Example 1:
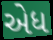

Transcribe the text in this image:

એધ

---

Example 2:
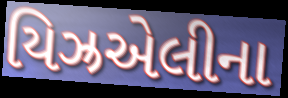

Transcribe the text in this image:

યિઝ્રએલીના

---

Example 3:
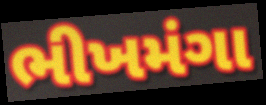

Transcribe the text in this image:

ભીખમંગા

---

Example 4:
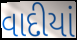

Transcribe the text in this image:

વાદીયાં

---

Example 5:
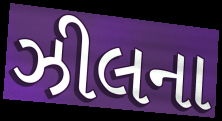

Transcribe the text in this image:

ઝીલના